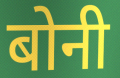
बोनी